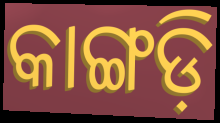
କାଙ୍ଗଡ଼ି